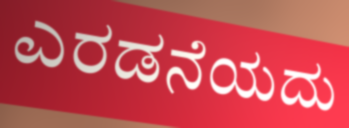
ಎರಡನೆಯದು